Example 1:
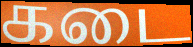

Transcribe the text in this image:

கடை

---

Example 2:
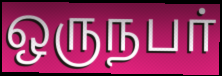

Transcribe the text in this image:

ஒருநபர்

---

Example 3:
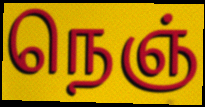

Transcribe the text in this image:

நெஞ்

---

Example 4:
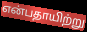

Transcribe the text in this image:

என்பதாயிற்று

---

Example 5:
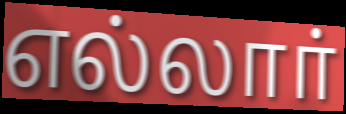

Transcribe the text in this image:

எல்லார்